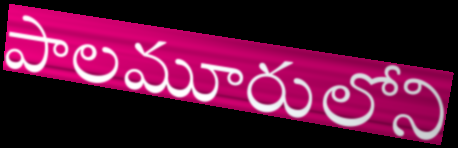
పాలమూరులోని